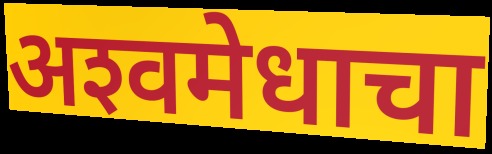
अश्‍वमेधाचा